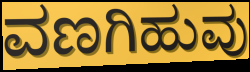
ವಣಗಿಹುವು